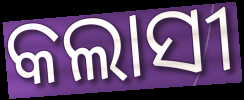
କଲାସୀ